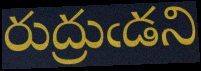
రుద్రుఁడని